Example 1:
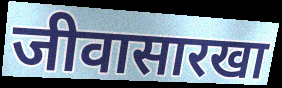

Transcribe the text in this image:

जीवासारखा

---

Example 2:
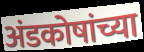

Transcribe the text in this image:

अंडकोषांच्या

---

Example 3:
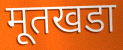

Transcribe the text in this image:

मूतखडा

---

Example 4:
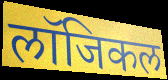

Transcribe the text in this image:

लॉजिकल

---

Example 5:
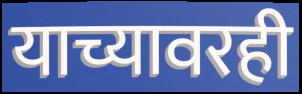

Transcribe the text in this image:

याच्यावरही